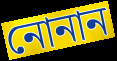
নোনান